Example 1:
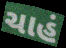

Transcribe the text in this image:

ચાહં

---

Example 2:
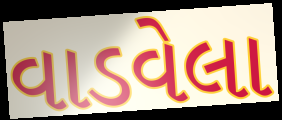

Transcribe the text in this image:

વાડવેલા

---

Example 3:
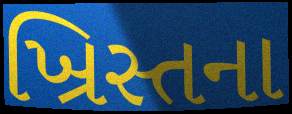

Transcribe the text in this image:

ખ્રિસ્તના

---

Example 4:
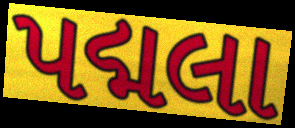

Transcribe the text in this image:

પદ્મલા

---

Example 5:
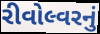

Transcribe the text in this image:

રીવોલ્વરનું